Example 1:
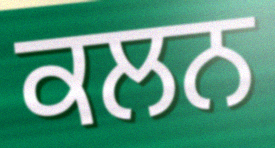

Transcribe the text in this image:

ਕਲਨ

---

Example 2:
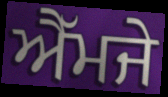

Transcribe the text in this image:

ਐੱਮਜੇ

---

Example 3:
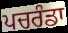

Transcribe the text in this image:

ਪਚਰੰਡਾ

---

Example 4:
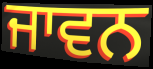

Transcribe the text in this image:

ਜਾਵਨ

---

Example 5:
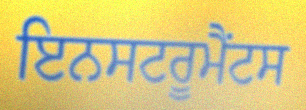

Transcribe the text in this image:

ਇਨਸਟਰੂਮੈਂਟਸ